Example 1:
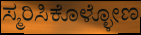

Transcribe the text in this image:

ಸ್ಮರಿಸಿಕೊಳ್ಳೋಣ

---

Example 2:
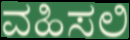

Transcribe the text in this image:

ವಹಿಸಲಿ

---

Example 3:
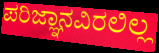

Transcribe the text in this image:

ಪರಿಜ್ಞಾನವಿರಲಿಲ್ಲ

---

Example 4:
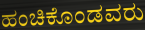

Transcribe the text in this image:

ಹಂಚಿಕೊಂಡವರು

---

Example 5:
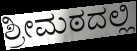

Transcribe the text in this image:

ಶ್ರೀಮಠದಲ್ಲಿ